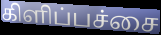
கிளிப்பச்சை